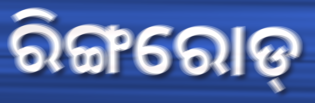
ରିଙ୍ଗରୋଡ୍